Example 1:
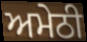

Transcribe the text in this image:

ਅਮੇਠੀ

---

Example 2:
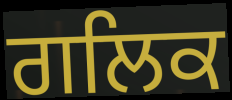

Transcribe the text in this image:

ਗਲਿਕ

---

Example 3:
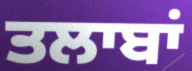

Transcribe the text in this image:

ਤਲਾਬਾਂ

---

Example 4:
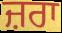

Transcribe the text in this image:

ਜ਼ਰਾ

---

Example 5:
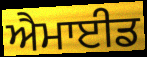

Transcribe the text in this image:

ਐਮਾਈਡ